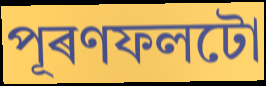
পূৰণফলটো